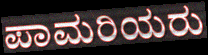
ಪಾಮರಿಯರು